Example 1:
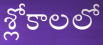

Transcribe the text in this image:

శ్లోకాలలో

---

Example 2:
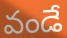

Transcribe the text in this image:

వండే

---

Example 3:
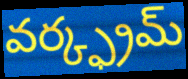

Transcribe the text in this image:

వర్క్ఫ్రమ్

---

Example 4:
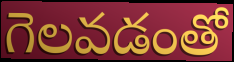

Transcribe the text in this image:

గెలవడంతో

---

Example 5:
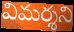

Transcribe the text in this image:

విమర్శని